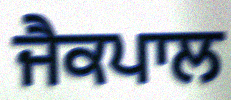
ਜੈਕਪਾਲ